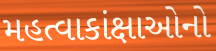
મહત્વાકાંક્ષાઓનો